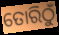
ତୋରିଠୁଁ